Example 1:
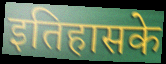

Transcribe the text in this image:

इतिहासके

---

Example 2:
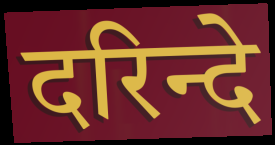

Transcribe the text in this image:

दरिन्दे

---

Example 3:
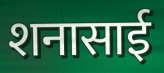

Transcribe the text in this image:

शनासाई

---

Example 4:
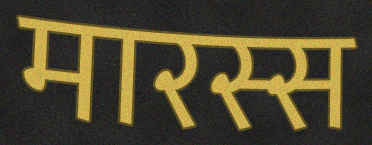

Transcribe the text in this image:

मारस्स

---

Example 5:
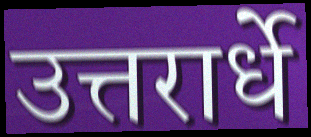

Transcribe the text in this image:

उत्तरार्धे